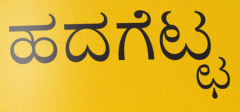
ಹದಗೆಟ್ಟ